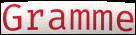
Gramme